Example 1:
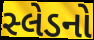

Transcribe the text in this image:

સ્લેડનો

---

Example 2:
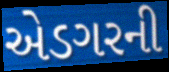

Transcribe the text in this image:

એડગરની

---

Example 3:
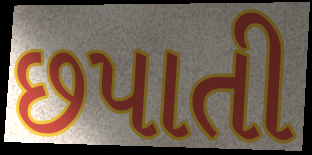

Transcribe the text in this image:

છપાતી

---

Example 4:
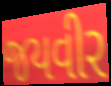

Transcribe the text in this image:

જયવીર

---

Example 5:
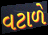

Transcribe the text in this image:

વટાળે